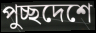
পুচ্ছদেশে